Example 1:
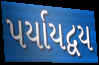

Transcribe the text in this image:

પર્યાયદ્વય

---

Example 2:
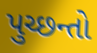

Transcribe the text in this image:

પુચ્છન્તો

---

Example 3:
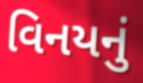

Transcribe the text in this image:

વિનયનું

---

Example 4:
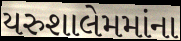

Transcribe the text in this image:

યરુશાલેમમાંના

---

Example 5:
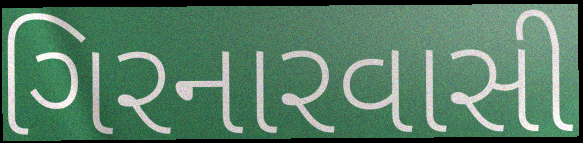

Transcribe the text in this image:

ગિરનારવાસી